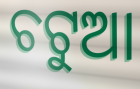
ଚଟୁଆ